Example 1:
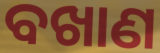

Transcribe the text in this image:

ବଖାଣ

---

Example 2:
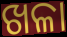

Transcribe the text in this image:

ଖଳା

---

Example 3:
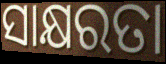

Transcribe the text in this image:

ସାକ୍ଷରତା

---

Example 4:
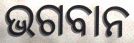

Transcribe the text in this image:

ଭଗବାନ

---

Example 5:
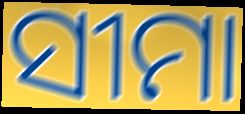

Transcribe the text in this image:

ସୀମା